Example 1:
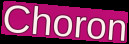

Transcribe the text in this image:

Choron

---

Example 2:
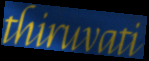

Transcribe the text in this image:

thiruvati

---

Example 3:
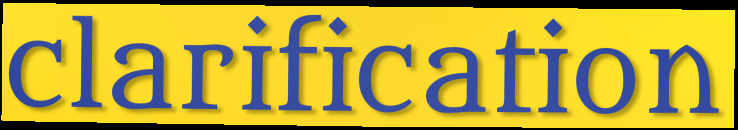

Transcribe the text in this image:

clarification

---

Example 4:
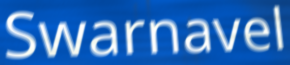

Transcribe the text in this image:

Swarnavel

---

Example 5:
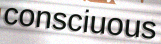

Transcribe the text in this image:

consciuous